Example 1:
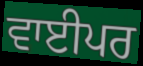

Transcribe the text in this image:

ਵਾਈਪਰ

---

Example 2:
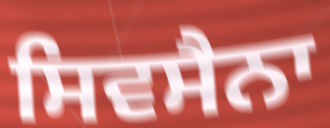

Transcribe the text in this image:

ਸਿਵਸੈਨਾ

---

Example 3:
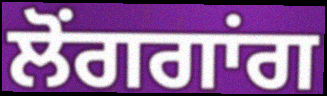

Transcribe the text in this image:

ਲੋਂਗਗਾਂਗ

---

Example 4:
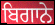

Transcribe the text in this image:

ਬਿਗਾਨੇ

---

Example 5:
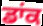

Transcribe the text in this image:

ਡਾਂਕ